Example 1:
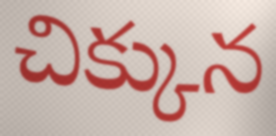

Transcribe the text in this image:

చిక్కున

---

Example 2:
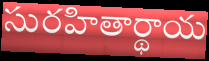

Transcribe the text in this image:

సురహితార్థాయ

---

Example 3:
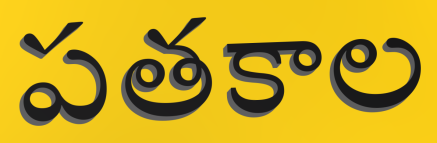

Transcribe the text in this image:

పతకాల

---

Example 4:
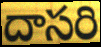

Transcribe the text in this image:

దాసరి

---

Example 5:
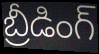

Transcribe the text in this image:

బ్రీడింగ్